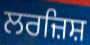
ਲਰਜ਼ਿਸ਼